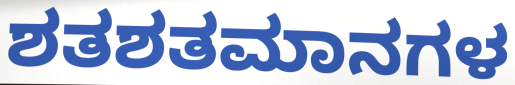
ಶತಶತಮಾನಗಳ